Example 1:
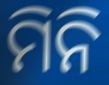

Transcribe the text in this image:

ମିନି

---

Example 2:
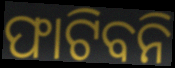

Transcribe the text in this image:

ଫାଟିବନି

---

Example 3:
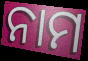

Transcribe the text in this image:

ନାମ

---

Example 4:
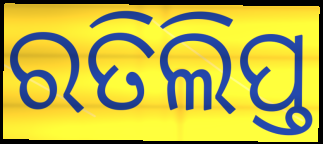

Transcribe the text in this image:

ରତିଲିପ୍ତ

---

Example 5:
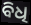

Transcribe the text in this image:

ବିଧି